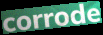
corrode